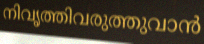
നിവൃത്തിവരുത്തുവാൻ